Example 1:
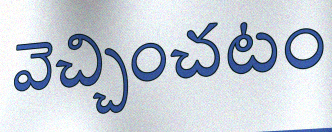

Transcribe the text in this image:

వెచ్చించటం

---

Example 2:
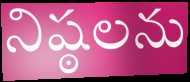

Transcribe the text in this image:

నిష్ఠలను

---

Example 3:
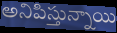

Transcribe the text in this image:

అనిపిస్తున్నాయి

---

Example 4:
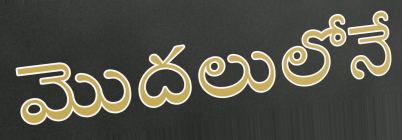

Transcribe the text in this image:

మొదలులోనే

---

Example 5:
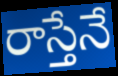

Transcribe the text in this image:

రాస్తేనే